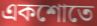
একশোতে